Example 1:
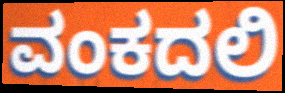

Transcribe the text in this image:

ವಂಕದಲಿ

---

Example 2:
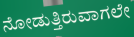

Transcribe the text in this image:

ನೋಡುತ್ತಿರುವಾಗಲೇ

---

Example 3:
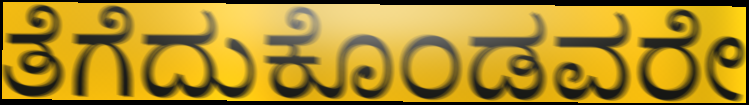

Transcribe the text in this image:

ತೆಗೆದುಕೊಂಡವರೇ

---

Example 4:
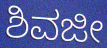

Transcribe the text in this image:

ಶಿವಜೀ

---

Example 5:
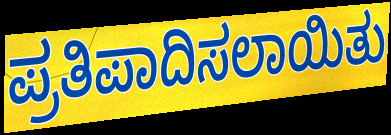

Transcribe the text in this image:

ಪ್ರತಿಪಾದಿಸಲಾಯಿತು